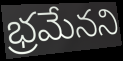
భ్రమేనని